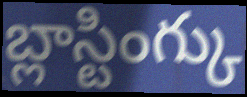
బ్లాస్టింగ్కు